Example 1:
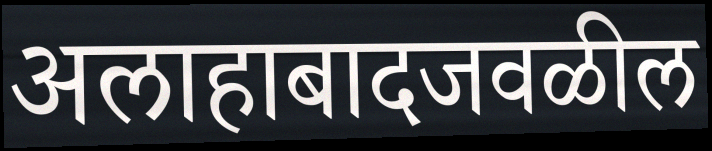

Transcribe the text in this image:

अलाहाबादजवळील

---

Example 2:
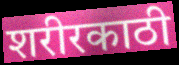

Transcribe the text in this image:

शरीरकाठी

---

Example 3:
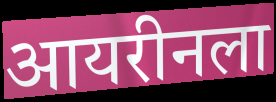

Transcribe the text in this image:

आयरीनला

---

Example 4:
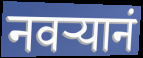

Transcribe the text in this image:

नवर्‍यानं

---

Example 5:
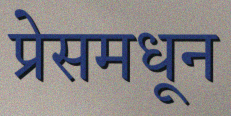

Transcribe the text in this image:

प्रेसमधून